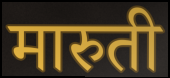
मारुती